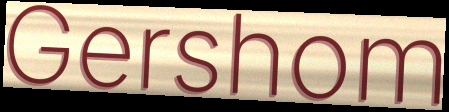
Gershom